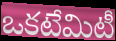
ఒకటేమిటీ